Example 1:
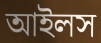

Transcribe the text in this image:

আইলস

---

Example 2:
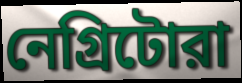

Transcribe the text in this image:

নেগ্রিটোরা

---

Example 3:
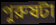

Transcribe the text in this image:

পুরুষটা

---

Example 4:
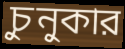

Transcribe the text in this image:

চুনুকার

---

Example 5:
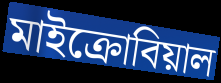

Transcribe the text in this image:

মাইক্রোবিয়াল